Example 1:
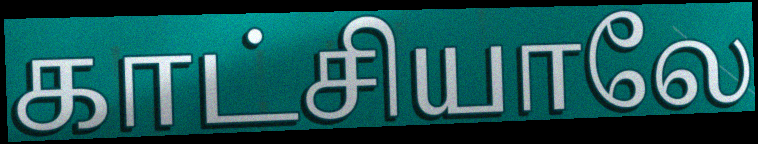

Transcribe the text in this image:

காட்சியாலே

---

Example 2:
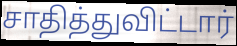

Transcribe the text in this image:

சாதித்துவிட்டார்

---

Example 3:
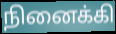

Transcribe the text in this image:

நினைக்கி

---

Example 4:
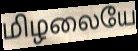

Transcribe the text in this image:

மிழலையே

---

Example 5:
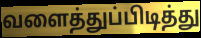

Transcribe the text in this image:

வளைத்துப்பிடித்து